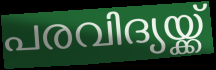
പരവിദ്യയ്ക്ക്